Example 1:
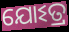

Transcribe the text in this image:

ଯୋଽତ୍ର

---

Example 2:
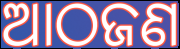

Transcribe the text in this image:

ଆଠଜଣ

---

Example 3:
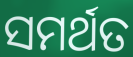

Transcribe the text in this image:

ସମର୍ଥତ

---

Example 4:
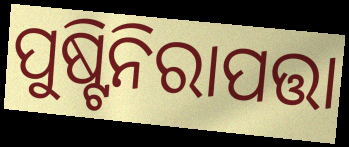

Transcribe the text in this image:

ପୁଷ୍ଟିନିରାପତ୍ତା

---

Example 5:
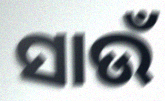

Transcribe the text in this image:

ସାଉଁ